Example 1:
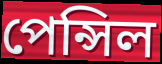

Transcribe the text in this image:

পেন্সিল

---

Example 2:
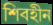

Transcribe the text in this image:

শিবহীন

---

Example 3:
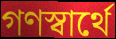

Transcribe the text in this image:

গণস্বার্থে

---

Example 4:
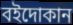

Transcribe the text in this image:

বইদোকান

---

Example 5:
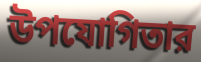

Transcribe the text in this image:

উপযোগিতার